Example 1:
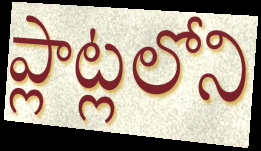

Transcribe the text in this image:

ప్లాట్లలోని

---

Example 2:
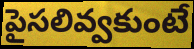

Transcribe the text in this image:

పైసలివ్వకుంటే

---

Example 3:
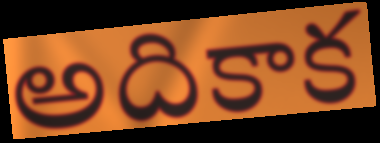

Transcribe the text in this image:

అదికాక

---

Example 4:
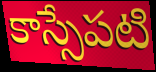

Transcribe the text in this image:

కాస్సేపటి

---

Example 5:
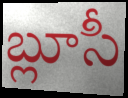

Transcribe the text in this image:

బ్లూసీ